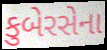
કુબેરસેના